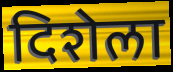
दिशेला